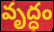
వృద్ధం